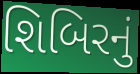
શિબિરનું